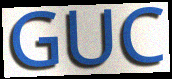
GUC